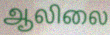
ஆலிலை